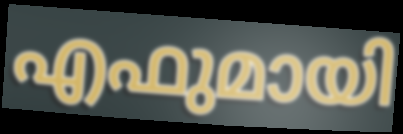
എഫുമായി